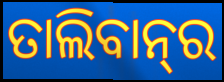
ତାଲିବାନ୍‌ର